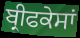
ਬ੍ਰੀਫਕੇਸਾਂ